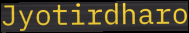
Jyotirdharo